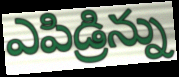
ఎపిడ్రిన్ను